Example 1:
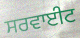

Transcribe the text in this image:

ਸਰਵਾਈਟ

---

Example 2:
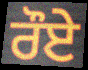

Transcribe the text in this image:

ਰੌਏ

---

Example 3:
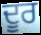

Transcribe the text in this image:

ਦੂਰ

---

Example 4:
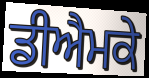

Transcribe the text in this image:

ਡੀਐਮਕੇ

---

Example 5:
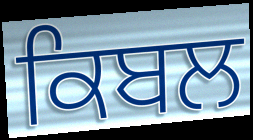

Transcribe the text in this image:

ਕਿਬਲ